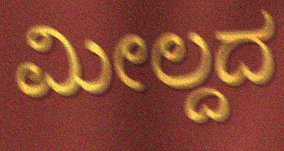
ಮೀಲ್ದದ